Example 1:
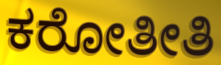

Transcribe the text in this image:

ಕರೋತೀತಿ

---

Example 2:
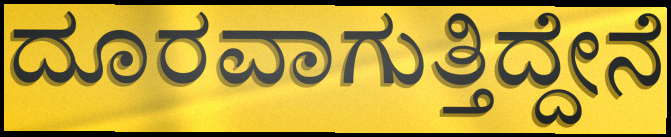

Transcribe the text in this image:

ದೂರವಾಗುತ್ತಿದ್ದೇನೆ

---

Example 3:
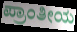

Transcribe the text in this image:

ಪ್ರಾಂತೀಯ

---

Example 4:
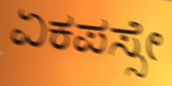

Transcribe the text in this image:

ಏಕಪಸ್ಸೇ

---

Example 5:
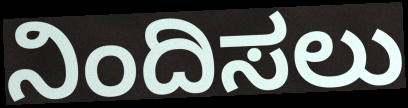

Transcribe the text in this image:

ನಿಂದಿಸಲು